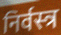
निर्वस्त्र